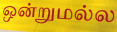
ஒன்றுமல்ல